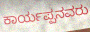
ಕಾರ್ಯಪ್ಪನವರು